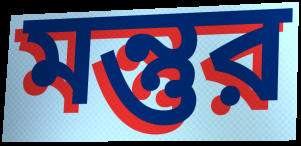
মন্তুর